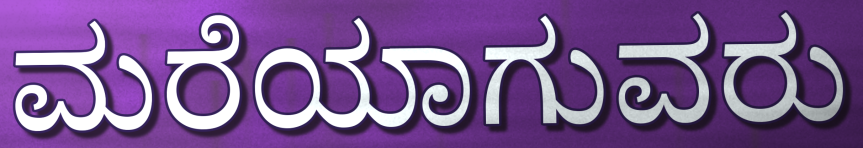
ಮರೆಯಾಗುವರು